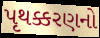
પૃથક્કરણનો